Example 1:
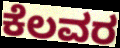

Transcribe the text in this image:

ಕೆಲವರ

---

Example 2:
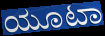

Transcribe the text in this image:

ಯೂಟಾ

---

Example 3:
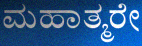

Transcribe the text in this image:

ಮಹಾತ್ಮರೇ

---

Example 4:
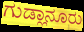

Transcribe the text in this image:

ಗುಡ್ಲಾನೂರು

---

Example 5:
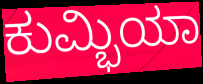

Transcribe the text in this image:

ಕುಮ್ಭಿಯಾ